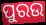
ପୁରଉ